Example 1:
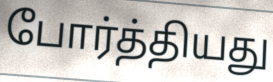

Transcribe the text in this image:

போர்த்தியது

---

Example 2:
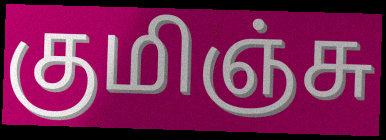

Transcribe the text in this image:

குமிஞ்சு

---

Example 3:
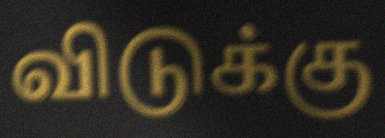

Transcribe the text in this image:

விடுக்கு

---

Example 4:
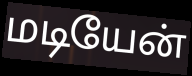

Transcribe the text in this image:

மடியேன்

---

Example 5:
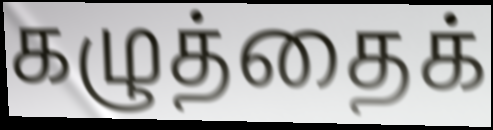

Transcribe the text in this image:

கழுத்தைக்